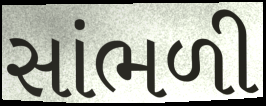
સાંભળી